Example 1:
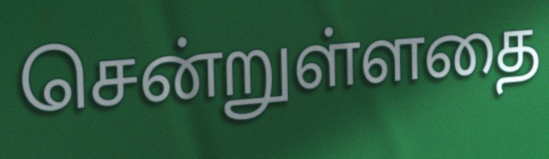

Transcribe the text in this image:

சென்றுள்ளதை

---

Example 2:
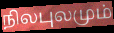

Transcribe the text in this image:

நிலபுலமும்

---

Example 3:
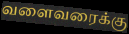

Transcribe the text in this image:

வளைவரைக்கு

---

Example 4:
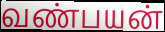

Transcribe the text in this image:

வண்பயன்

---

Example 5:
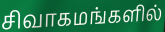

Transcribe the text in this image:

சிவாகமங்களில்